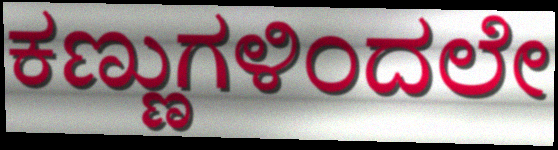
ಕಣ್ಣುಗಳಿಂದಲೇ